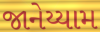
જાનેય્યામ